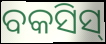
ବକସିସ୍